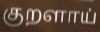
குறளாய்